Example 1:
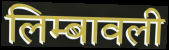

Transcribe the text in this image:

लिम्बावली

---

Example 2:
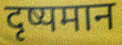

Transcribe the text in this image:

दृष्यमान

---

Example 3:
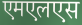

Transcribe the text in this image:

एमएलएस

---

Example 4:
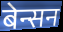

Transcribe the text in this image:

बेन्सन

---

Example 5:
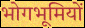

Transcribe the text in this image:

भोगभूमियों